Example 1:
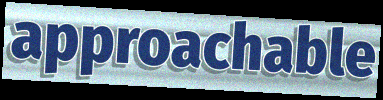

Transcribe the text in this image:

approachable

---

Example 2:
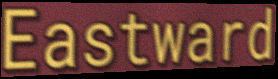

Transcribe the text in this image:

Eastward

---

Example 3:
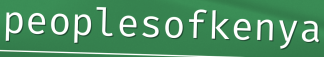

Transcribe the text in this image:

peoplesofkenya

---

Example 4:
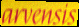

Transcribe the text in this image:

arvensis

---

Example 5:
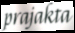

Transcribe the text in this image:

prajakta